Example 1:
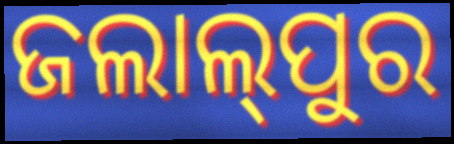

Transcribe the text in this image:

ଜଲାଲ୍‍ପୁର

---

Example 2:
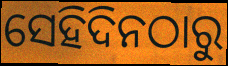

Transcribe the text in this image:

ସେହିଦିନଠାରୁ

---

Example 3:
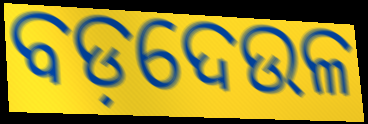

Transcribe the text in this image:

ବଡ଼ଦେଉଳ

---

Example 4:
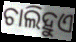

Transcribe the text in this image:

ଚାଲିହୁଏ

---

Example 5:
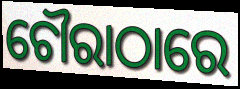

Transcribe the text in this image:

ଚୌରାଠାରେ